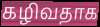
கழிவதாக